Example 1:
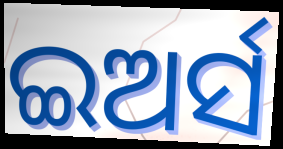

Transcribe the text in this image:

ଇଅର୍ସ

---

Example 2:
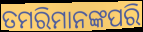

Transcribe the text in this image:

ତମରିମାନଙ୍କପରି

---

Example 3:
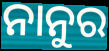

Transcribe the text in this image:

ନାନୁର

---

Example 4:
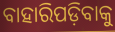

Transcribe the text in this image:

ବାହାରିପଡ଼ିବାକୁ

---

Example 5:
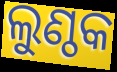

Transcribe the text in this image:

ଲୁଣ୍ଠକ